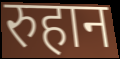
रुहान